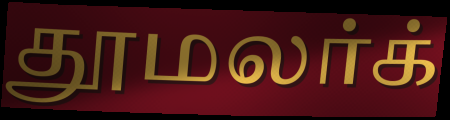
தூமலர்க்